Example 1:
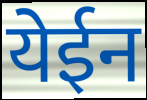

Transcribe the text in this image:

येईन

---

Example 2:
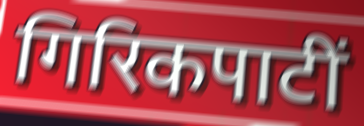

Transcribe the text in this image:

गिरिकपाटीं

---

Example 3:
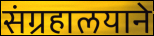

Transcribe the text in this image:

संग्रहालयाने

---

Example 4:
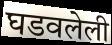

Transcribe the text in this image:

घडवलेली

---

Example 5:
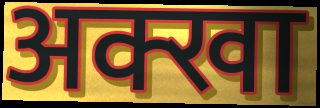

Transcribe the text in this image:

अक्खा